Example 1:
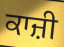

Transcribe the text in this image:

ਕਾਜ਼ੀ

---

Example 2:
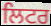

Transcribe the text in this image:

ਲਿਟਰ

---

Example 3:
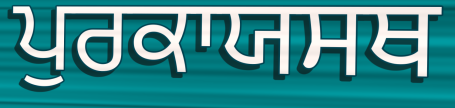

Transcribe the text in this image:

ਪੁਰਕਾਯਸਥ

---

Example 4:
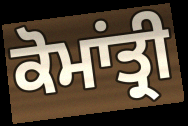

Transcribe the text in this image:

ਕੋਮਾਂਤ੍ਰੀ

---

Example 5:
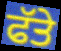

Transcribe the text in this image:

ਫੱਤੇ